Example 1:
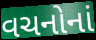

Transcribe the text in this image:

વચનોનાં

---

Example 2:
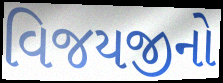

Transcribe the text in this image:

વિજયજીનો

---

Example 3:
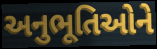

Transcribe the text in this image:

અનુભૂતિઓને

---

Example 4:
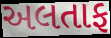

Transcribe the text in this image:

અલતાફ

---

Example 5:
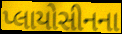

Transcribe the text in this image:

પ્લાયોસીનના